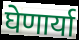
घेणार्या